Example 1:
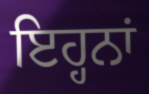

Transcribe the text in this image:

ਇਹ੍ਹਨਾਂ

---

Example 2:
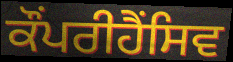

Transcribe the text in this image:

ਕੌਂਪਰੀਹੈਂਸਿਵ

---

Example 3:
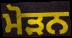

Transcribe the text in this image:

ਮੋੜਨ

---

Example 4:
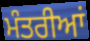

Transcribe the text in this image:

ਮੰਤਰੀਆਂ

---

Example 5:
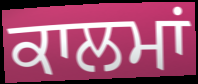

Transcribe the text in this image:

ਕਾਲਮਾਂ